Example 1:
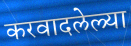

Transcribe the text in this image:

करवादलेल्या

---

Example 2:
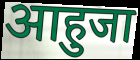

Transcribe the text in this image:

आहुजा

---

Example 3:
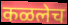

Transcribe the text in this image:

कळलेच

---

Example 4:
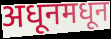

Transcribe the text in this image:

अधूनमधून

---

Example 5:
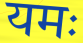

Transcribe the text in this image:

यमः